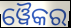
ୱୈକର